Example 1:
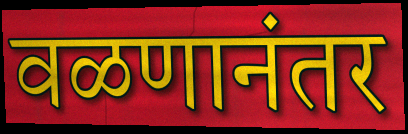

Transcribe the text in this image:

वळणानंतर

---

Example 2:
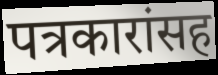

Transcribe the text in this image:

पत्रकारांसह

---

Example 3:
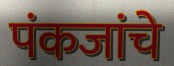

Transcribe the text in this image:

पंकजांचे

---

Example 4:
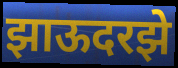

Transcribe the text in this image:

झाऊदरझे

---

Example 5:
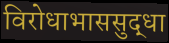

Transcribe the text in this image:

विरोधाभाससुद्धा